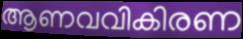
ആണവവികിരണ